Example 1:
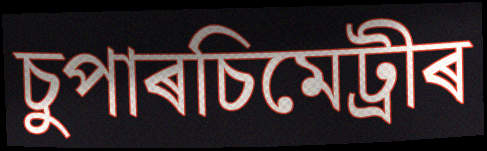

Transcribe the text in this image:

চুপাৰচিমেট্ৰীৰ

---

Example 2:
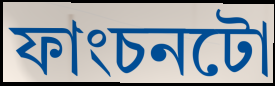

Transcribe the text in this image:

ফাংচনটো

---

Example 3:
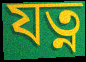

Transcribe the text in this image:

যত্ন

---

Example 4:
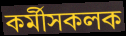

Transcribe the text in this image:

কৰ্মীসকলক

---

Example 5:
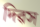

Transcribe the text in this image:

দিৱস